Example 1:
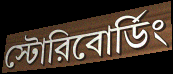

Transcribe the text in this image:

স্টোরিবোর্ডিং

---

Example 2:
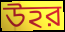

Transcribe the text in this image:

উহর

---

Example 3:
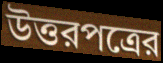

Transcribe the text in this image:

উত্তরপত্রের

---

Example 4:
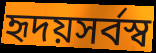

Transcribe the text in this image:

হৃদয়সর্বস্ব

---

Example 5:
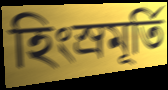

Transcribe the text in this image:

হিংস্রমূর্তি